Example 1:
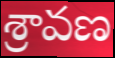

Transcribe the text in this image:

శ్రావణ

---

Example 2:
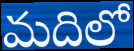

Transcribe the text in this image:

మదిలో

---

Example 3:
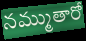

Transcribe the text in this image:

నమ్ముతారో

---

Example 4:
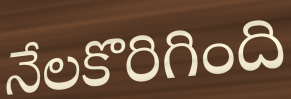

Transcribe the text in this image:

నేలకొరిగింది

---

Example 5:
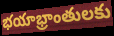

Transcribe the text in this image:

భయాభ్రాంతులకు